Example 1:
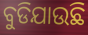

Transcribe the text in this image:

ବୁଡିଯାଉଛି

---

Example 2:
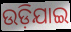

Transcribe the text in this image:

ଉଡ଼ିଯାଇ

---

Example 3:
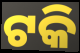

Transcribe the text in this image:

ଟକି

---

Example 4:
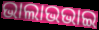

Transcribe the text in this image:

ଭାଲାଭଭାଇ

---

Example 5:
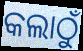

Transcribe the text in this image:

କଲାଠୁଁ